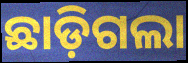
ଛାଡ଼ିଗଲା